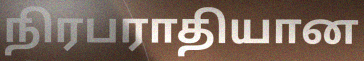
நிரபராதியான